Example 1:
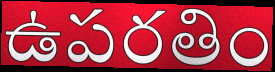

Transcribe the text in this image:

ఉపరతిం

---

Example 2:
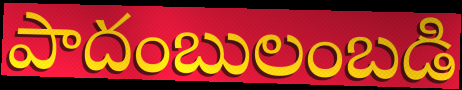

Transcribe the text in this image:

పాదంబులంబడి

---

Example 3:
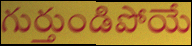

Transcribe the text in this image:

గుర్తుండిపోయే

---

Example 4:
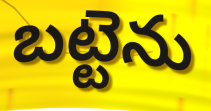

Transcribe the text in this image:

బట్టెను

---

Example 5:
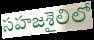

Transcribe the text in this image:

సహజశైలిలో